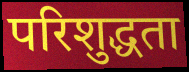
परिशुद्धता